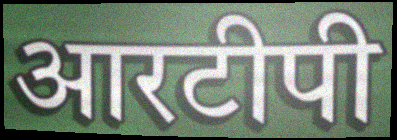
आरटीपी